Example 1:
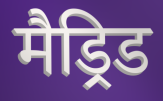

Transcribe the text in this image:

मैड्रिड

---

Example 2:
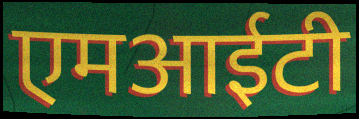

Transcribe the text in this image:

एमआईटी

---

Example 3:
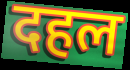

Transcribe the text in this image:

दहल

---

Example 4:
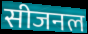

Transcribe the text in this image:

सीजनल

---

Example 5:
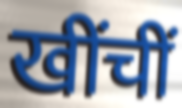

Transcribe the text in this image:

खींचीं